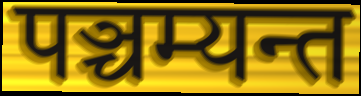
पञ्चम्यन्त